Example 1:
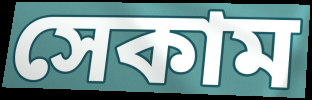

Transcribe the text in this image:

সেকাম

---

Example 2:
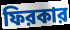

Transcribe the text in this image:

ফিরকার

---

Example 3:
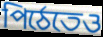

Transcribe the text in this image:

পিঠেতেও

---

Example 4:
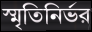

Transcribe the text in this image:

স্মৃতিনির্ভর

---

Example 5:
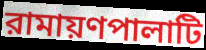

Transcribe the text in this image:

রামায়ণপালাটি